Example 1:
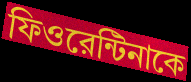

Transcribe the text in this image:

ফিওরেন্টিনাকে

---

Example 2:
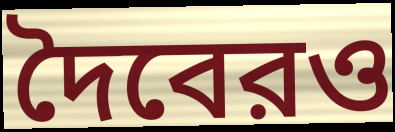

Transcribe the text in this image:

দৈবেরও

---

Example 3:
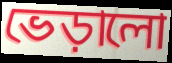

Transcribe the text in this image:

ভেড়ালো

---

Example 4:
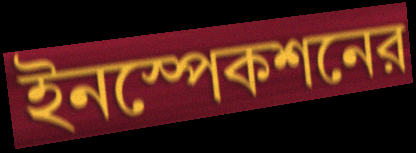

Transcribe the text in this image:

ইনস্পেকশনের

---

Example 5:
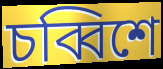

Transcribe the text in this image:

চব্বিশে